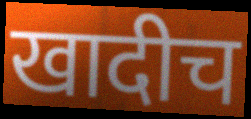
खादीच